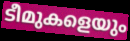
ടീമുകളെയും